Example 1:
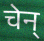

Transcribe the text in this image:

चेन्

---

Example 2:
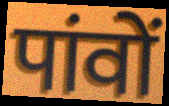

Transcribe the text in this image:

पांवों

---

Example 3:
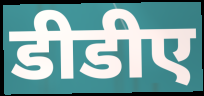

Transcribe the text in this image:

डीडीए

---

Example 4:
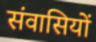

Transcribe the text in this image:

संवासियों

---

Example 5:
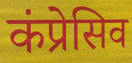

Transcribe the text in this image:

कंप्रेसिव